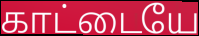
காட்டையே